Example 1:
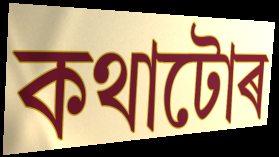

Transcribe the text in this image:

কথাটোৰ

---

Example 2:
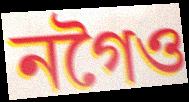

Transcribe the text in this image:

নগৈও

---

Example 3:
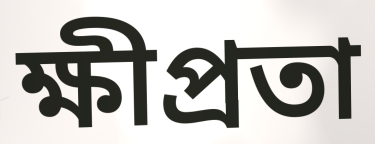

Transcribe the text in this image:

ক্ষীপ্ৰতা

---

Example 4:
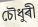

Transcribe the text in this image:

চৌধুৰী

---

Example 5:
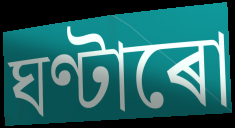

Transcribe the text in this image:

ঘণ্টাৰো